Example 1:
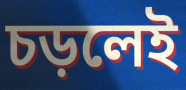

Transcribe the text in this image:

চড়লেই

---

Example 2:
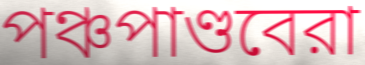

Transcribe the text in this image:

পঞ্চপাণ্ডবেরা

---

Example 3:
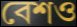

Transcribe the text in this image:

বেশও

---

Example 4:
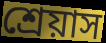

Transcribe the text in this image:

শ্রেয়াস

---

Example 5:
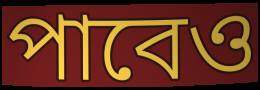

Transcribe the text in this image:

পাবেও